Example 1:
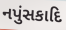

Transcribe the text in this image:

નપુંસકાદિ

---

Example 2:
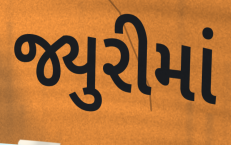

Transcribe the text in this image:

જ્યુરીમાં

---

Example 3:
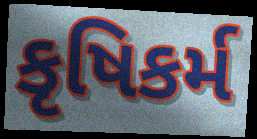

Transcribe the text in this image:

કૃષિકર્મ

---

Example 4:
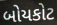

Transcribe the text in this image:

બોયકોટ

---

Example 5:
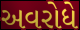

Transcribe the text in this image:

અવરોધે